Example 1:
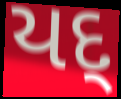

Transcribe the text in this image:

યદ્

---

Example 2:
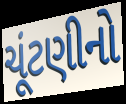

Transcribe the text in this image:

ચૂંટણીનો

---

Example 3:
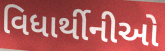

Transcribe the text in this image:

વિધાર્થીનીઓ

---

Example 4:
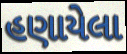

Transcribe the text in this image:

હણાયેલા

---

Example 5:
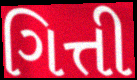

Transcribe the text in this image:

ગિત્તી